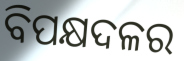
ବିପକ୍ଷଦଳର